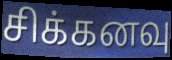
சிக்கனவு